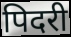
पिदरी